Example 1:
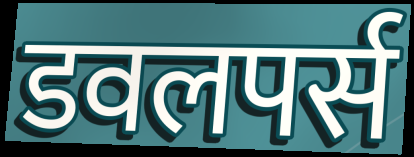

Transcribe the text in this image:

डवलपर्स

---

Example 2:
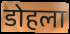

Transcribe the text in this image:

डोहला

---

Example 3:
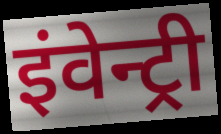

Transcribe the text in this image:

इंवेन्ट्री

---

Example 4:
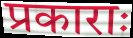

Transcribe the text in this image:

प्रकाराः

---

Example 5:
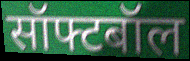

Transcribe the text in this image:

सॉफ्टबॉल